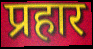
प्रहार